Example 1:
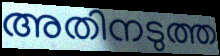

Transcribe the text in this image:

അതിനടുത്ത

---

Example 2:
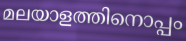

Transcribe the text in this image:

മലയാളത്തിനൊപ്പം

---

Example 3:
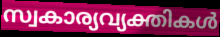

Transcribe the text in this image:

സ്വകാര്യവ്യക്തികൾ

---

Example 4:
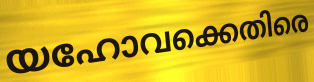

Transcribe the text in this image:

യഹോവക്കെതിരെ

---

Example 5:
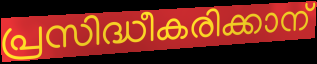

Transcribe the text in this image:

പ്രസിദ്ധീകരിക്കാന്